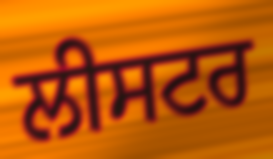
ਲੀਸਟਰ